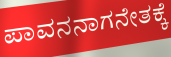
ಪಾವನನಾಗನೇತಕ್ಕೆ